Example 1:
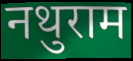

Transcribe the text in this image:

नथुराम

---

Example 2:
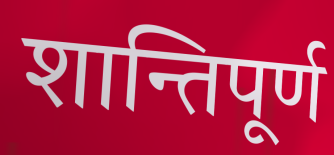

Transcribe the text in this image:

शान्तिपूर्ण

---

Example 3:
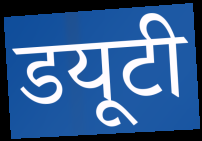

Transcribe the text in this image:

डयूटी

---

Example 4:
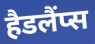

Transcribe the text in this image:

हैडलैंप्स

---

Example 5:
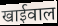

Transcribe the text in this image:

खाईवाल